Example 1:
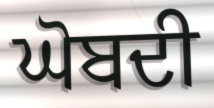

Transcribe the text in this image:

ਘੋਬਦੀ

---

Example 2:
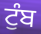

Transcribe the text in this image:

ਟੁੰਬ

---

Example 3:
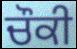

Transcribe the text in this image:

ਚੌਕੀ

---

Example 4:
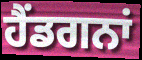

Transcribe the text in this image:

ਹੈਂਡਗਨਾਂ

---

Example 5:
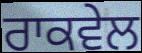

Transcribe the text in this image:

ਰਾਕਵੇਲ